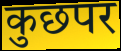
कुछपर